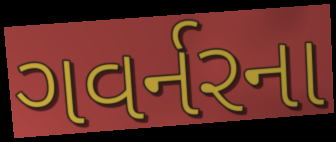
ગવર્નરના